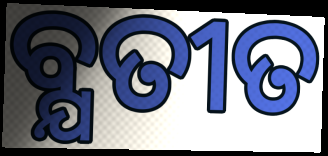
ବ୍ଯତୀତ